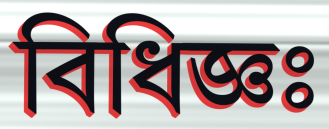
বিধিজ্ঞঃ